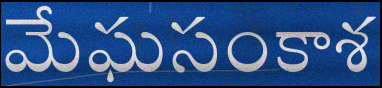
మేఘసంకాశ